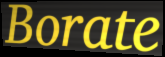
Borate